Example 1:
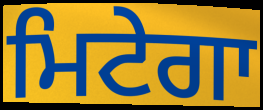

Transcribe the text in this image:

ਮਿਟੇਗਾ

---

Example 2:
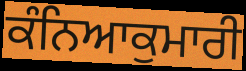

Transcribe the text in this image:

ਕੰਨਿਆਕੁਮਾਰੀ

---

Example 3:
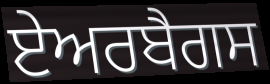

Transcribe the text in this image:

ਏਅਰਬੈਗਸ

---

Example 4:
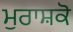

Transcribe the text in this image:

ਮੁਰਾਸ਼ਕੋ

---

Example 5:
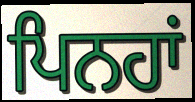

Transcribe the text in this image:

ਪਿਨਹਾਂ